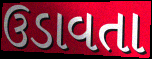
ઉડાવતા